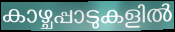
കാഴ്ചപ്പാടുകളിൽ